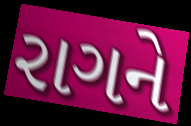
રાગને